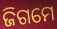
ଜିଗମେ